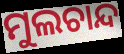
ମୁଲଚାନ୍ଦ